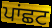
ਪਾਂਛਟ